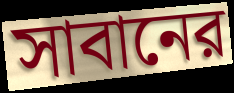
সাবানের